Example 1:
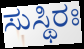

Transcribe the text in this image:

ಸುಸ್ಥಿರಃ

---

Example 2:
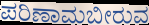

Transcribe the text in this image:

ಪರಿಣಾಮಬೀರುವ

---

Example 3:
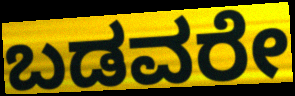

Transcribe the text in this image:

ಬಡವರೇ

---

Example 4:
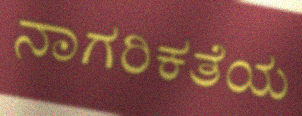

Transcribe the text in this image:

ನಾಗರಿಕತೆಯ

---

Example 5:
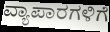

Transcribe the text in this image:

ವ್ಯಾಪಾರಗಳಿಗೆ